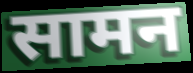
सामन